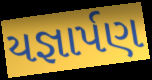
યજ્ઞાર્પણ